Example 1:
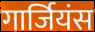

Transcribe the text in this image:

गार्जियंस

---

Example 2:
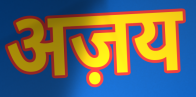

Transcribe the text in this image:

अज़य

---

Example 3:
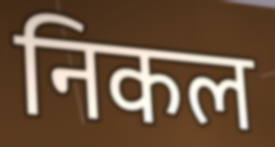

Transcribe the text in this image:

निकल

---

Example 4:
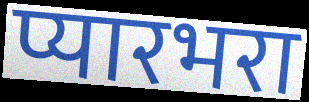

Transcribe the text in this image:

प्यारभरा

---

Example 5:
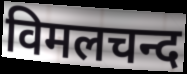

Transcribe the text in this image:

विमलचन्द